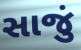
સાજું